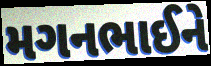
મગનભાઈને